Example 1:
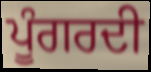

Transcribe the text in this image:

ਪੂੰਗਰਦੀ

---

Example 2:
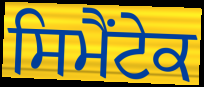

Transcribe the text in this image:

ਸਿਮੈਂਟੇਕ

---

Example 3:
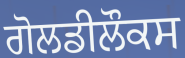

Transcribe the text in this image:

ਗੋਲਡੀਲੌਕਸ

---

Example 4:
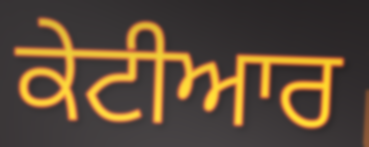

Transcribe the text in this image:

ਕੇਟੀਆਰ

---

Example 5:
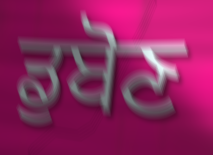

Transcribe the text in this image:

ਡੁਬੋਣ